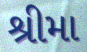
શ્રીમા